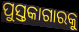
ପୁସ୍ତକାଗାରକୁ